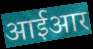
आईआर